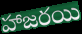
హాజరయి